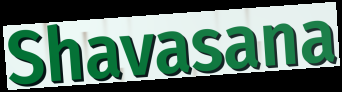
Shavasana